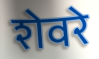
शेवरे